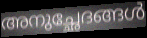
അനുച്ഛേദങ്ങൾ